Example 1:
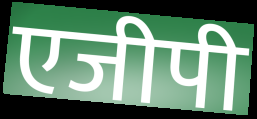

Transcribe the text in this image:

एजीपी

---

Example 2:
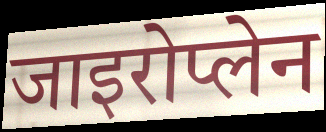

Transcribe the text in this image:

जाइरोप्लेन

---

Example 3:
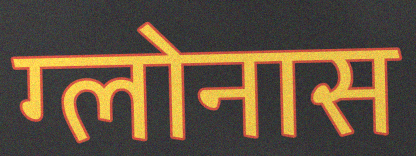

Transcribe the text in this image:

ग्लोनास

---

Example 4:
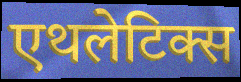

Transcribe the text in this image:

एथलेटिक्‍स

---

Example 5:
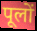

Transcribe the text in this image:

पूलों